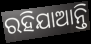
ରହିଯାଆନ୍ତି